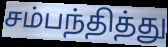
சம்பந்தித்து